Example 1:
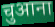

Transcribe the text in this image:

चुआना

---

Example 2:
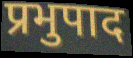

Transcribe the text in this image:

प्रभुपाद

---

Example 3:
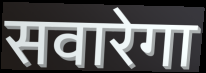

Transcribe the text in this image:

सवारेगा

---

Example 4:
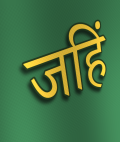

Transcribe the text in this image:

जहिं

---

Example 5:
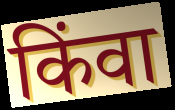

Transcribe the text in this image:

किंवा